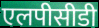
एलपीसीडी